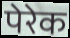
पेरेक